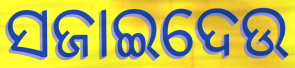
ସଜାଇଦେଉ